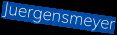
Juergensmeyer